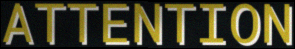
ATTENTION